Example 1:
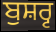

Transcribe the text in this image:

ਬੁਸ਼ਰ੍ਟ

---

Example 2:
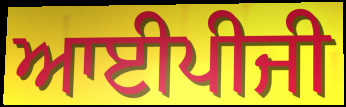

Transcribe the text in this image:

ਆਈਪੀਜੀ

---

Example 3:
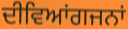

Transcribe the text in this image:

ਦੀਵਿਆਂਗਜਨਾਂ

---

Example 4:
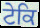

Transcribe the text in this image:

ਟੇਕਿ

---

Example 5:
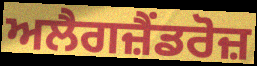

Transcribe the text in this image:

ਅਲੈਗਜ਼ੈਂਡਰੋਜ਼